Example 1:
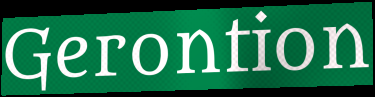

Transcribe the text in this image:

Gerontion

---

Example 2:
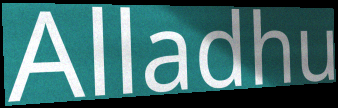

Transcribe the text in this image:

Alladhu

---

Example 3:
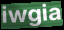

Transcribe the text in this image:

iwgia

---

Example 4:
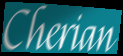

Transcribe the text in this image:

Cherian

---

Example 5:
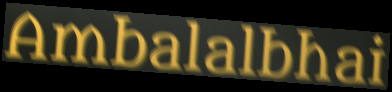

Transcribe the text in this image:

Ambalalbhai